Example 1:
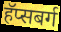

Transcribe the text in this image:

हॅप्सबर्ग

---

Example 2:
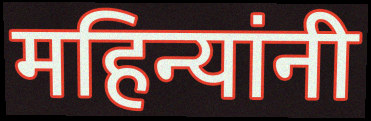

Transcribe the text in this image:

महिन्यांनी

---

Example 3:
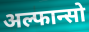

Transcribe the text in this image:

अल्फान्सो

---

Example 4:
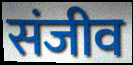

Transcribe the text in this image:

संजीव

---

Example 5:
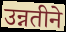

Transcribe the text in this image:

उन्नतीने